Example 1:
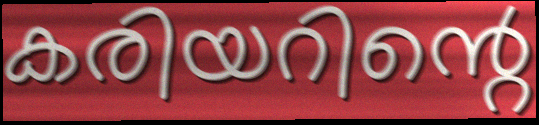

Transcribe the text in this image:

കരിയറിന്റെ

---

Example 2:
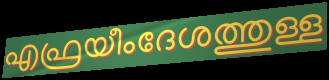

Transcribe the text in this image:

എഫ്രയീംദേശത്തുള്ള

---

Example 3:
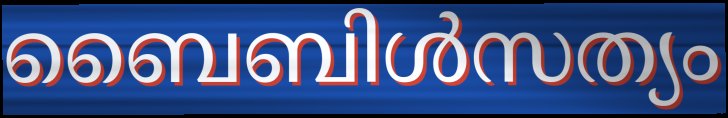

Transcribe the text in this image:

ബൈബിൾസത്യം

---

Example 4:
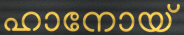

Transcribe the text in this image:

ഹാനോയ്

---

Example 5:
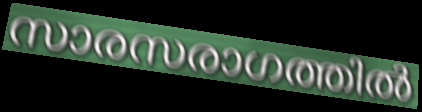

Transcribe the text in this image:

സാരസരാഗത്തിൽ